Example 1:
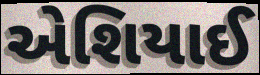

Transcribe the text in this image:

એશિયાઈ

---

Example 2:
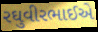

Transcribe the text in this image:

રઘુવીરભાઈએ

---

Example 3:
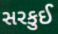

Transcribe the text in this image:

સરકુઈ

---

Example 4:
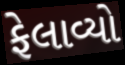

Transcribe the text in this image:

ફેલાવ્યો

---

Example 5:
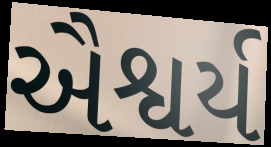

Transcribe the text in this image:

ઐશ્વર્ય